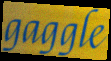
gaggle